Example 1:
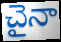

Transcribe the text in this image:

చైనా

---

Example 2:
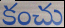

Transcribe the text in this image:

కంచు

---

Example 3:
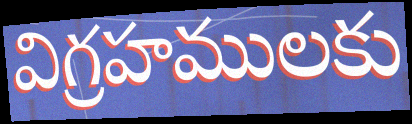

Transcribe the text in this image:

విగ్రహములకు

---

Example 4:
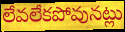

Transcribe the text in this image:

లేవలేకపోవునట్లు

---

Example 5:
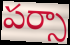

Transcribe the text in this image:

పర్సా